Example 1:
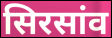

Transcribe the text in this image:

सिरसांव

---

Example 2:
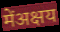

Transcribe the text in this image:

मेंअक्षय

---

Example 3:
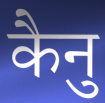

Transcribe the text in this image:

कैनु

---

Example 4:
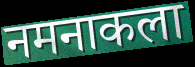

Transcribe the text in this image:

नमनाकला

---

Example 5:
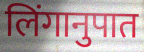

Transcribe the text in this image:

लिंगानुपात